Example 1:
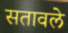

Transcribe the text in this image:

सतावले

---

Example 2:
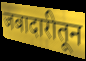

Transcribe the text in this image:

जबादारीतून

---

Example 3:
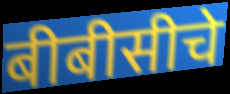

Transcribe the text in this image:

बीबीसीचे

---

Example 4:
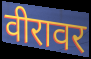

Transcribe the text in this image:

वीरावर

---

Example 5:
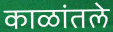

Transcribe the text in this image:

काळांतले